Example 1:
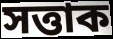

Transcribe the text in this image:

সত্তাক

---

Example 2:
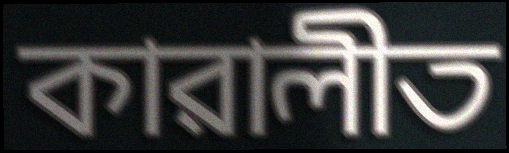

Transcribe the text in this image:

কাৱালীত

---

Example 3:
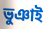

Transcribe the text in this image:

ভুঞাই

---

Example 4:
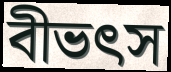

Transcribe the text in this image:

বীভৎস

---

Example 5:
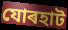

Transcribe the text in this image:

যোৰহাট